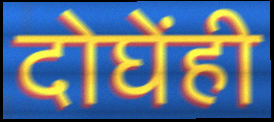
दोघेंही